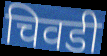
चिवडी